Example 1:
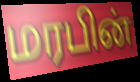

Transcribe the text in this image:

மரபின்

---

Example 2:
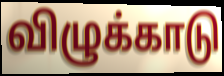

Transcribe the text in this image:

விழுக்காடு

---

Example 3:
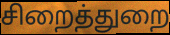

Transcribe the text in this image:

சிறைத்துறை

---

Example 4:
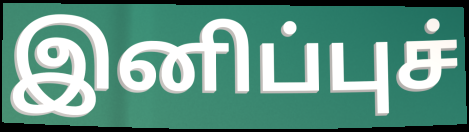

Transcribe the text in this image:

இனிப்புச்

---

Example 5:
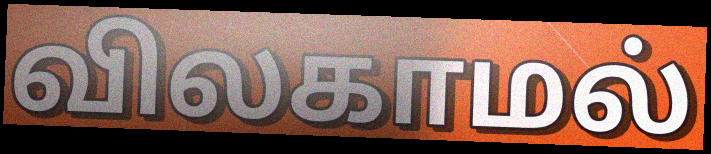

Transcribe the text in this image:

விலகாமல்